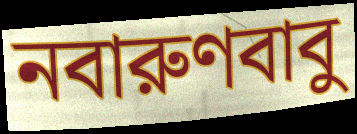
নবারুণবাবু